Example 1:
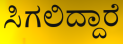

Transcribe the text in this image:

ಸಿಗಲಿದ್ದಾರೆ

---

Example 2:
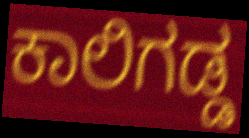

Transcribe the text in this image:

ಕಾಲಿಗಡ್ಡ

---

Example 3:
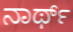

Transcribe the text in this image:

ನಾರ್ಥ್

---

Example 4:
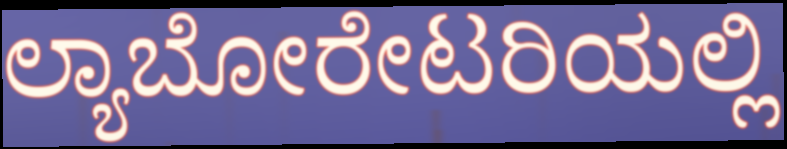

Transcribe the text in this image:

ಲ್ಯಾಬೋರೇಟರಿಯಲ್ಲಿ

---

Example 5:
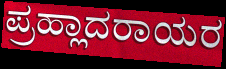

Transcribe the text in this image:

ಪ್ರಹ್ಲಾದರಾಯರ